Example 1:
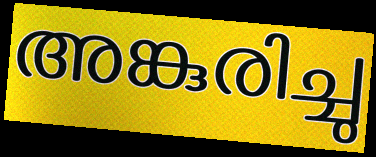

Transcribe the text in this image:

അങ്കുരിച്ചു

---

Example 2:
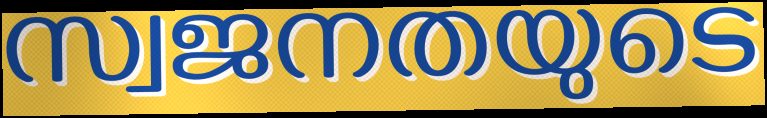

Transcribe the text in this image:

സ്വജനതയുടെ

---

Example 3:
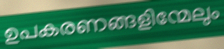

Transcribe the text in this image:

ഉപകരണങ്ങളിന്മേലും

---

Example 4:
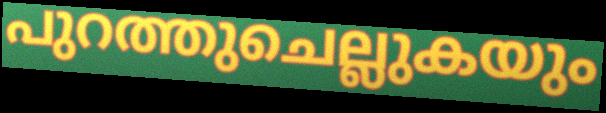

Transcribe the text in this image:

പുറത്തുചെല്ലുകയും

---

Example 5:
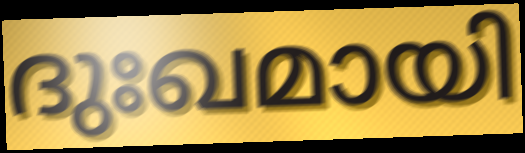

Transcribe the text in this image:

ദുഃഖമായി